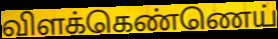
விளக்கெண்ணெய்